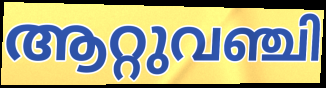
ആറ്റുവഞ്ചി